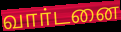
வார்டனை